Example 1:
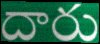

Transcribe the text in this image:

దారు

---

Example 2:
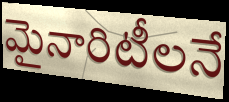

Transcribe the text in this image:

మైనారిటీలనే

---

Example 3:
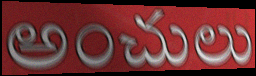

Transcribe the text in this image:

అంచులు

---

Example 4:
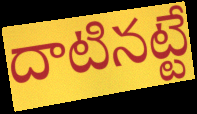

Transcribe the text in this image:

దాటినట్టే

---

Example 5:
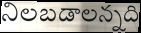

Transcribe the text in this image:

నిలబడాలన్నది